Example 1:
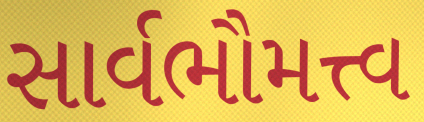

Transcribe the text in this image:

સાર્વભૌમત્ત્વ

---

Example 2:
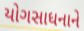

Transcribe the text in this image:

યોગસાધનાને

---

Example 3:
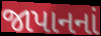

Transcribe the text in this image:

જાપાનનાં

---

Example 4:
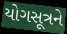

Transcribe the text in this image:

યોગસૂત્રને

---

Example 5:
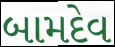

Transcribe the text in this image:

બામદેવ